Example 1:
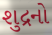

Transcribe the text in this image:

શુદ્રનો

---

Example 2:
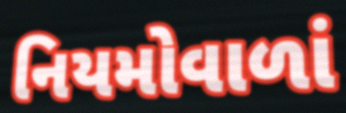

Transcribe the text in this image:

નિયમોવાળાં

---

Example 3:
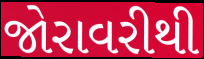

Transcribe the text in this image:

જોરાવરીથી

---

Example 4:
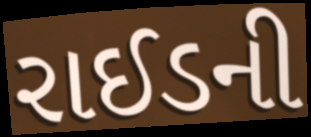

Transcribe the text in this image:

રાઈડની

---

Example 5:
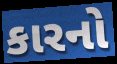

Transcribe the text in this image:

કારનો